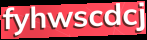
fyhwscdcj